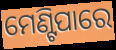
ମେଣ୍ଟିପାରେ